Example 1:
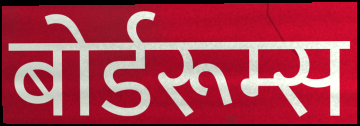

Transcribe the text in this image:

बोर्डरूम्स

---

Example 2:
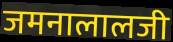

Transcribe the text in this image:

जमनालालजी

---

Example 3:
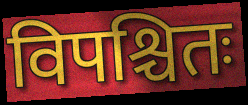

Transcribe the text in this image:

विपश्चितः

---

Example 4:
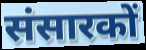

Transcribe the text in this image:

संसारकों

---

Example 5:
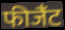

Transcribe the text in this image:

फीजैंट